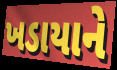
ખડાયાને